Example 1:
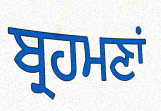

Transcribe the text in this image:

ਬ੍ਰਹਮਣਾਂ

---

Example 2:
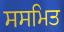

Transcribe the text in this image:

ਸਸਮਿਤ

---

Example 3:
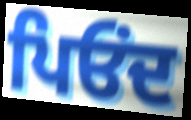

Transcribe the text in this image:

ਪਿਓਂਦ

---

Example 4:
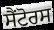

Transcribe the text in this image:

ਸੈਂਟੋਰਸ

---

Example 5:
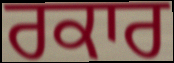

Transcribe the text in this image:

ਰਕਾਰ